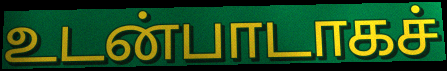
உடன்பாடாகச்